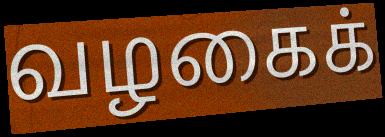
வழகைக்